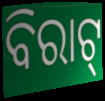
ବିରାଟ୍